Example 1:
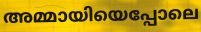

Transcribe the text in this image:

അമ്മായിയെപ്പോലെ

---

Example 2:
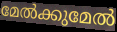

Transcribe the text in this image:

മേൽക്കുമേൽ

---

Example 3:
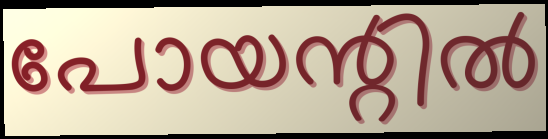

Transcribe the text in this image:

പോയന്റിൽ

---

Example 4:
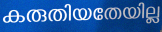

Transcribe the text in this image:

കരുതിയതേയില്ല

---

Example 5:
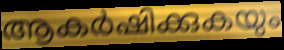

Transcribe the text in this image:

ആകർഷിക്കുകയും